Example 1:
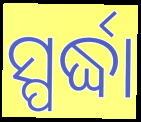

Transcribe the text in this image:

ସ୍ପର୍ଦ୍ଧା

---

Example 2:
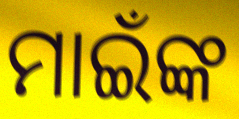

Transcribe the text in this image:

ମାଇଁଙ୍କ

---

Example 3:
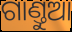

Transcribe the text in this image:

ଗାଣ୍ତୁଆ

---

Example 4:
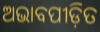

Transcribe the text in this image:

ଅଭାବପୀଡ଼ିତ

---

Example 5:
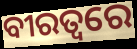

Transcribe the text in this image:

ବୀରତ୍ୱରେ